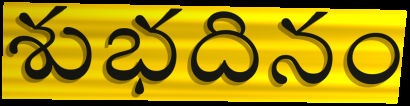
శుభదినం